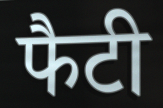
फैटी